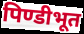
पिण्डीभूत